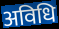
अविधि